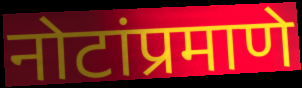
नोटांप्रमाणे